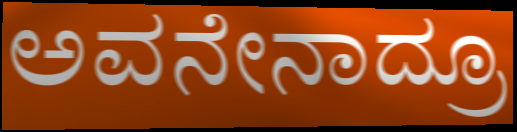
ಅವನೇನಾದ್ರೂ